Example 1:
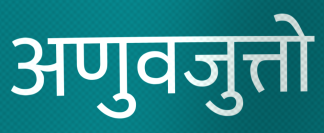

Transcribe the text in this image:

अणुवजुत्तो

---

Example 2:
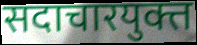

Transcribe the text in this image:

सदाचारयुक्त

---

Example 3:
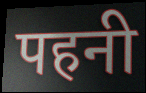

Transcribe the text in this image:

पहनी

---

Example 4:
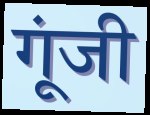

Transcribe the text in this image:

गूंजी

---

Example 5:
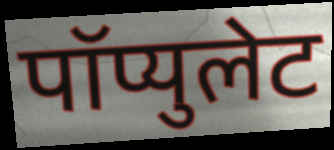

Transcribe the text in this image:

पॉप्युलेट